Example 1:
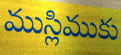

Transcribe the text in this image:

ముస్లిముకు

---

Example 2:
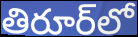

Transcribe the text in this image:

తిరూర్‌లో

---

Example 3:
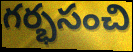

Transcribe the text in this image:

గర్భసంచి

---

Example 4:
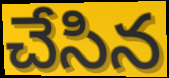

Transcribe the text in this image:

చేసిన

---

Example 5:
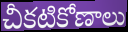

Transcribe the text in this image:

చీకటికోణాలు